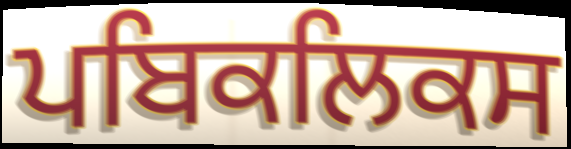
ਪਬਿਕਲਿਕਸ